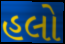
હલો